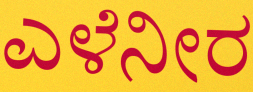
ಎಳೆನೀರ